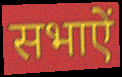
सभाऐं